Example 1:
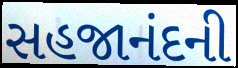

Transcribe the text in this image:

સહજાનંદની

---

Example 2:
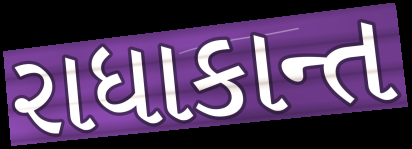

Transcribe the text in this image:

રાધાકાન્ત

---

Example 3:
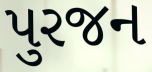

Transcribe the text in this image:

પુરજન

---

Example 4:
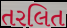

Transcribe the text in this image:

તરલિત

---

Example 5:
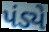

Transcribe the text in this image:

પંડ્યે